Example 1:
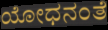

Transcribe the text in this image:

ಯೋಧನಂತೆ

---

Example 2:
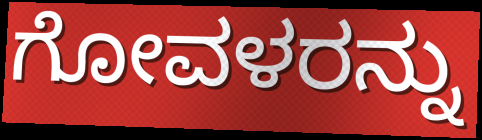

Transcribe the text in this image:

ಗೋವಳರನ್ನು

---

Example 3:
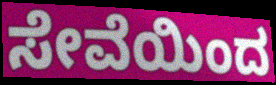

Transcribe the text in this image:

ಸೇವೆಯಿಂದ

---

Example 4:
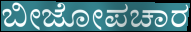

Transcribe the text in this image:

ಬೀಜೋಪಚಾರ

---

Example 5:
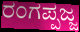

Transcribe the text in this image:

ರಂಗಪ್ಪಜ್ಜ